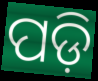
ପଡ଼ି